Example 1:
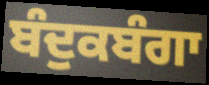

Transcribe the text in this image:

ਬੰਦੁਕਬੰਗਾ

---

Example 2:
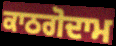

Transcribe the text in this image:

ਕਾਠਗੋਦਾਮ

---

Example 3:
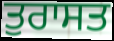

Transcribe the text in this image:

ਤੁਰਾਸਤ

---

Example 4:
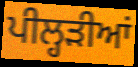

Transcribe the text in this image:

ਪੀਲ੍ਹੜੀਆਂ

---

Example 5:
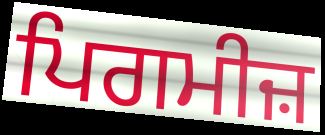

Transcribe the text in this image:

ਪਿਗਮੀਜ਼